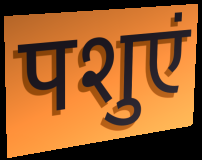
पशुएं